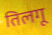
तिलगू